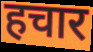
हचार